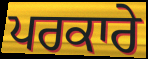
ਪਰਕਾਰੇ